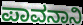
ಪಾವನಾನಿ